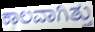
ಕಾಲವಾಗಿತ್ತು